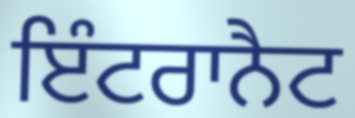
ਇੰਟਰਾਨੈਟ